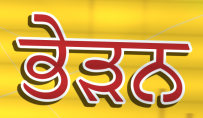
ਭੇੜਨ